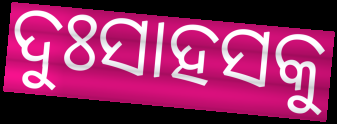
ଦୁଃସାହସକୁ